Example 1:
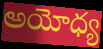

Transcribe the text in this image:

అయోధ్య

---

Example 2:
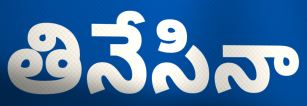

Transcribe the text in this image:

తినేసినా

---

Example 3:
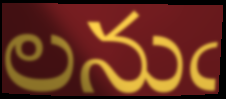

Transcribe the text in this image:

లనుఁ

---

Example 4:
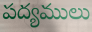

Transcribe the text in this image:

పద్యములు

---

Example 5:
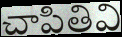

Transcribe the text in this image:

చాపితివి